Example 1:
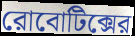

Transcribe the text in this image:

রোবোটিক্সের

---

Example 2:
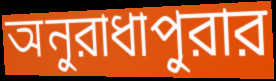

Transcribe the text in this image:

অনুরাধাপুরার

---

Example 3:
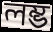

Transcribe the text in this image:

লম্ভ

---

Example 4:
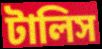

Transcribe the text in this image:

টালিস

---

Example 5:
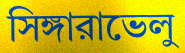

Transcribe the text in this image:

সিঙ্গারাভেলু